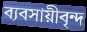
ব্যবসায়ীবৃন্দ